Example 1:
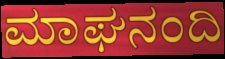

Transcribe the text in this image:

ಮಾಘನಂದಿ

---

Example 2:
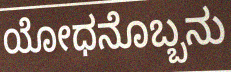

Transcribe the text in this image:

ಯೋಧನೊಬ್ಬನು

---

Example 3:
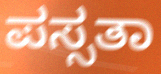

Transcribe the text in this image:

ಪಸ್ಸತಾ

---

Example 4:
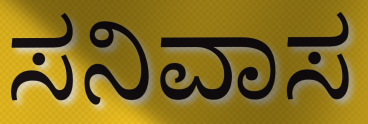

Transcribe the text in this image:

ಸನಿವಾಸ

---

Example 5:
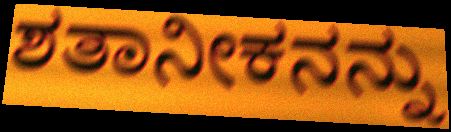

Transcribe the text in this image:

ಶತಾನೀಕನನ್ನು